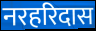
नरहरिदास